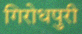
गिरोधपुरी